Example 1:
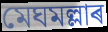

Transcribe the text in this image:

মেঘমল্লাৰ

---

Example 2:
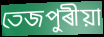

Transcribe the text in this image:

তেজপুৰীয়া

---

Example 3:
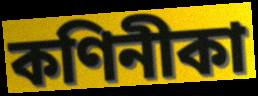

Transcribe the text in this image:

কণিনীকা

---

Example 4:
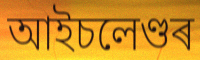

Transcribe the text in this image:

আইচলেণ্ডৰ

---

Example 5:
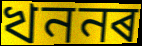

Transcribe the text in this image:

খননৰ